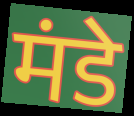
मंडे